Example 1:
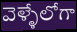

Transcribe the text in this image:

వెళ్ళేలోగా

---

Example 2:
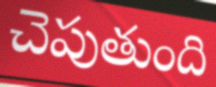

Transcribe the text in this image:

చెపుతుంది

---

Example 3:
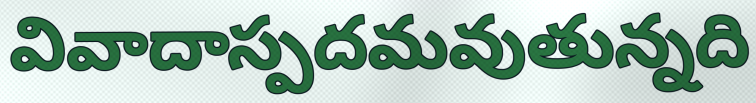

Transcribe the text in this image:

వివాదాస్పదమవుతున్నది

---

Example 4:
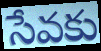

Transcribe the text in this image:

సేవకు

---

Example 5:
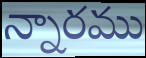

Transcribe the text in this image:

న్నారము